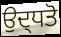
ਉਦ੍ਧਤੋ